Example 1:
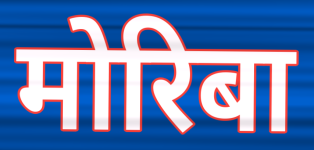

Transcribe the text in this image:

मोरिबा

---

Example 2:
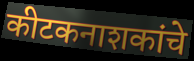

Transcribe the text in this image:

कीटकनाशकांचे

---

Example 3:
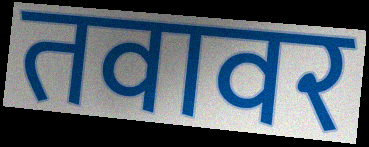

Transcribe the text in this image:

तवावर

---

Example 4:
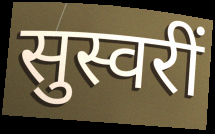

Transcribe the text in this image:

सुस्वरीं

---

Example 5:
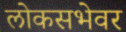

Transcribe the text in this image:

लोकसभेवर